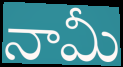
నామీ